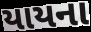
યાયના